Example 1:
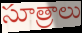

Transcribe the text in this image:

సూత్రాలు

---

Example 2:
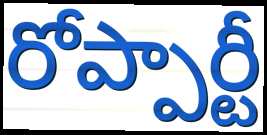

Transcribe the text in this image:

రోప్పార్టీ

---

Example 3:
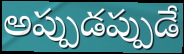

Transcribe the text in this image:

అప్పుడప్పుడే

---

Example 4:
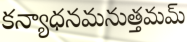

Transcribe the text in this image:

కన్యాధనమనుత్తమమ్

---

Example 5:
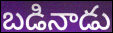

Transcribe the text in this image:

బడినాడు